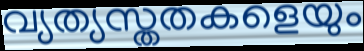
വ്യത്യസ്തതകളെയും